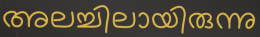
അലച്ചിലായിരുന്നു